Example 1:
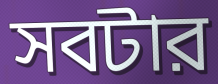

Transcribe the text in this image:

সবটার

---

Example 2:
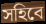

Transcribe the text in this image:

সহিবে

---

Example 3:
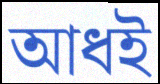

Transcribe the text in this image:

আধই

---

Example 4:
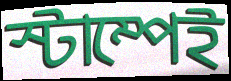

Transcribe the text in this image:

স্টাম্পেই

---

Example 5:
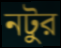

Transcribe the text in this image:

নটুর